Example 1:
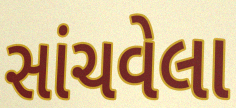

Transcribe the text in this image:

સાંચવેલા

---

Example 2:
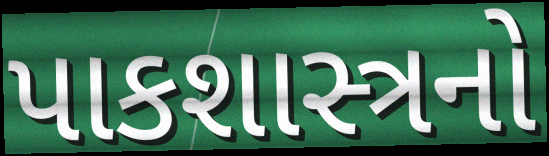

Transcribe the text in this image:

પાકશાસ્ત્રનો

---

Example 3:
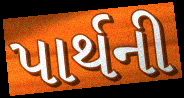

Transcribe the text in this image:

પાર્થની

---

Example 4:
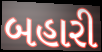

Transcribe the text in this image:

બહારી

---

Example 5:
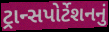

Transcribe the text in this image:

ટ્રાન્સપોર્ટેશનનું